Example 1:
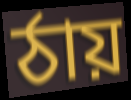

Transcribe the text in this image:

ঠায়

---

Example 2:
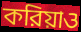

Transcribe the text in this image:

করিয়াও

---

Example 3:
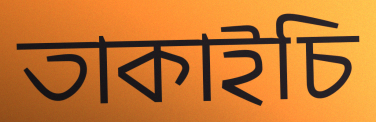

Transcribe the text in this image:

তাকাইচি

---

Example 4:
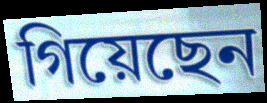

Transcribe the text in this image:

গিয়েছেন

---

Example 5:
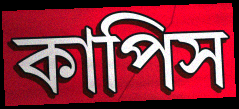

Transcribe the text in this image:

কাপিস